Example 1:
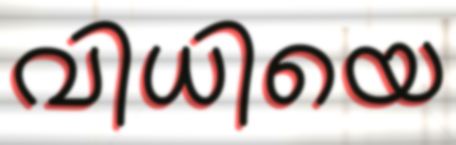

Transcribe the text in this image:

വിധിയെ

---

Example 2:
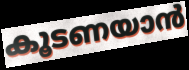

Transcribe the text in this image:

കൂടണയാൻ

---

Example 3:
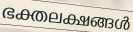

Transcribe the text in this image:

ഭക്തലക്ഷങ്ങൾ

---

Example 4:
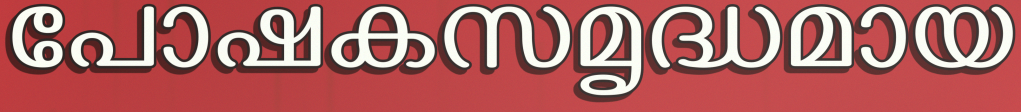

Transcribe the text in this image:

പോഷകസമൃദ്ധമായ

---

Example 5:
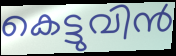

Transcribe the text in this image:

കെട്ടുവിൻ